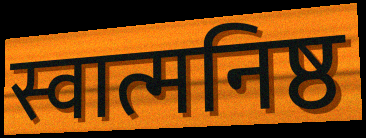
स्वात्मनिष्ठ